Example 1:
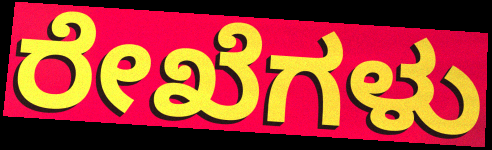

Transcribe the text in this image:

ರೇಖೆಗಳು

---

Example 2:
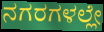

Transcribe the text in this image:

ನಗರಗಳಲ್ಲೇ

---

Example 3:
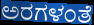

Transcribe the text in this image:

ಅರಗಳಂತೆ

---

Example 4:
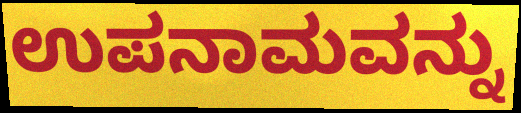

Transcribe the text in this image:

ಉಪನಾಮವನ್ನು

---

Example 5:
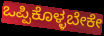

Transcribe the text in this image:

ಒಪ್ಪಿಕೊಳ್ಳಬೇಕೇ